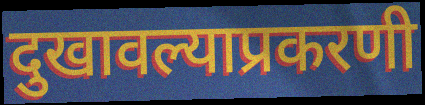
दुखावल्याप्रकरणी